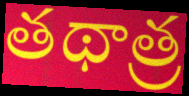
తథాత్ర